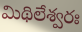
మిథిలేశ్వరః